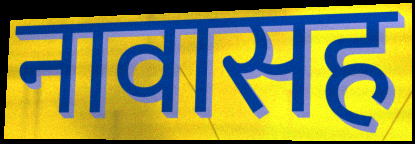
नावासह